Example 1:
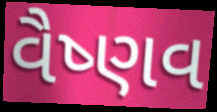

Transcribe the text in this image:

વૈષ્ણવ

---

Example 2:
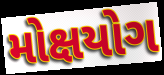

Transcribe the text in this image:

મોક્ષયોગ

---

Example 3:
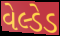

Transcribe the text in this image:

વેલ્ડેડ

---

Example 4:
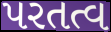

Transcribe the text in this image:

પરતત્વ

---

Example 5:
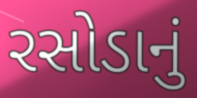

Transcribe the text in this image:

રસોડાનું